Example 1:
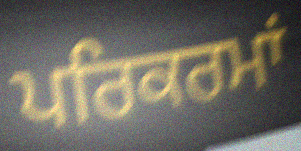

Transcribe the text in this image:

ਪਰਿਕਰਮਾਂ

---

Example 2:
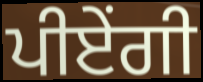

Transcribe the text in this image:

ਪੀਏਂਗੀ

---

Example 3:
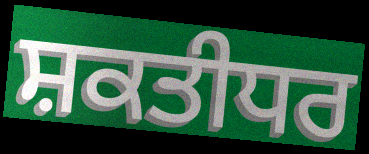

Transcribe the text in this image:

ਸ਼ਕਤੀਧਰ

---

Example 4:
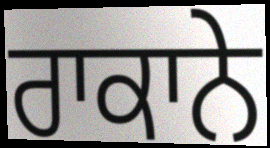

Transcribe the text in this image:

ਰਾਕਾਨੇ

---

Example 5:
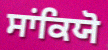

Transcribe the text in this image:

ਸਾਂਕਿਯੋ